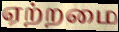
ஏற்றமை